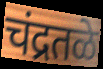
चंद्रतळे